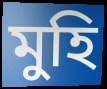
মুহি